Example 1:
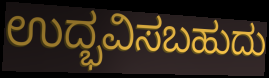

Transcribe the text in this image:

ಉದ್ಭವಿಸಬಹುದು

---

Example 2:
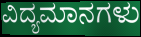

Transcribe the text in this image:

ವಿದ್ಯಮಾನಗಳು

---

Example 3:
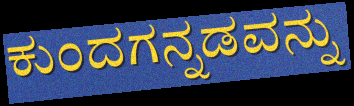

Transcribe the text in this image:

ಕುಂದಗನ್ನಡವನ್ನು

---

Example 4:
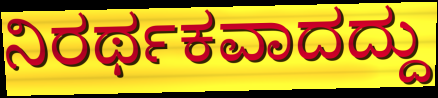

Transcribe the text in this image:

ನಿರರ್ಥಕವಾದದ್ದು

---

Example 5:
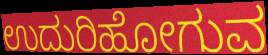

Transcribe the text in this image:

ಉದುರಿಹೋಗುವ